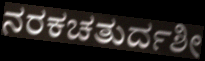
ನರಕಚತುರ್ದಶೀ